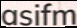
asifm